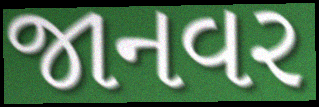
જાનવર